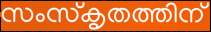
സംസ്കൃതത്തിന്